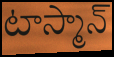
టాస్మాన్